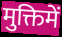
मुक्तिमें